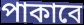
পাকাবে